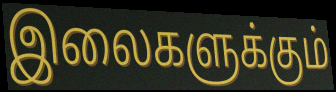
இலைகளுக்கும்